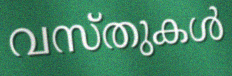
വസ്തുകൾ